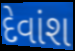
દેવાંશ